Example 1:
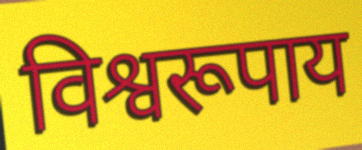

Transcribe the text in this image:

विश्वरूपाय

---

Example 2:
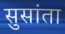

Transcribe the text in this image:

सुसांता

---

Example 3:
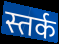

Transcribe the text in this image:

स्तर्क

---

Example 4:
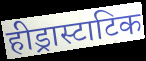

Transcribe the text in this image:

हीड्रास्टाटिक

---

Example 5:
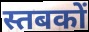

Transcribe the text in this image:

स्तबकों